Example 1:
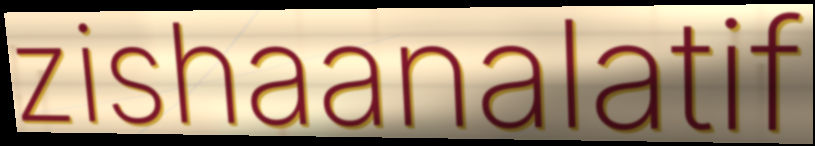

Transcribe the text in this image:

zishaanalatif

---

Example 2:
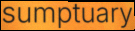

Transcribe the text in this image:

sumptuary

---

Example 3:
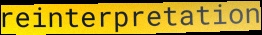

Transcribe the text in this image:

reinterpretation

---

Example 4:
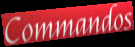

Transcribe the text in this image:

Commandos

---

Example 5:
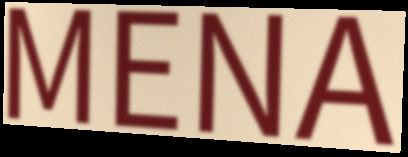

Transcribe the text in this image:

MENA